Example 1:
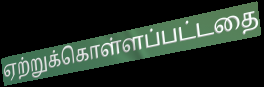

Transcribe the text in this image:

ஏற்றுக்கொள்ளப்பட்டதை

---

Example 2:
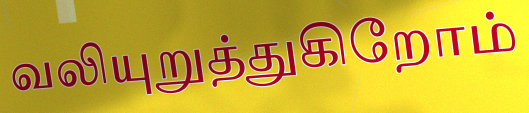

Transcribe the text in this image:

வலியுறுத்துகிறோம்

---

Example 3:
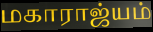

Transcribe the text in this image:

மகாராஜ்யம்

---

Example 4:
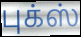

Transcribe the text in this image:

புக்ஸ்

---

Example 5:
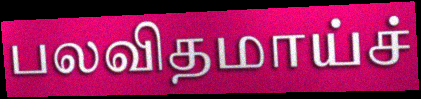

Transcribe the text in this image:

பலவிதமாய்ச்